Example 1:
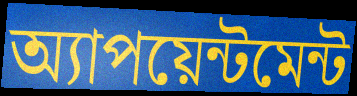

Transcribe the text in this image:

অ্যাপয়েন্টমেন্ট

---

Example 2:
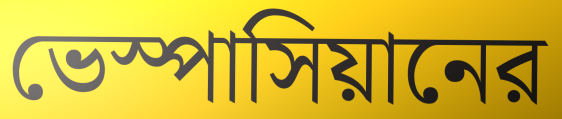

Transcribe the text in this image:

ভেস্পাসিয়ানের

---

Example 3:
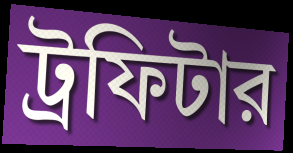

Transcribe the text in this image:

ট্রফিটার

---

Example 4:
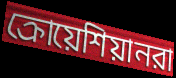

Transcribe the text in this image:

ক্রোয়েশিয়ানরা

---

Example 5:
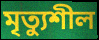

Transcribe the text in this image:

মৃত্যুশীল